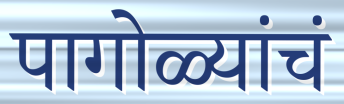
पागोळ्यांचं